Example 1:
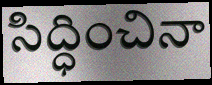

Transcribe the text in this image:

సిద్ధించినా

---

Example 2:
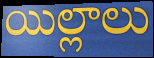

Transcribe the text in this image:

యిల్లాలు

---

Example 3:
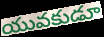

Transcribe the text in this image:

యువకుడూ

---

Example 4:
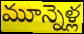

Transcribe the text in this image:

మూన్నెళ్ల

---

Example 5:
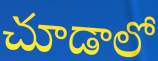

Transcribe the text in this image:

చూడాలో